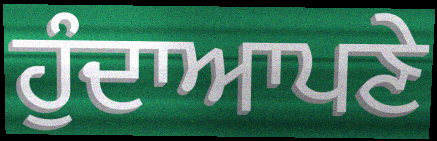
ਹੁੰਦਾਆਪਣੇ